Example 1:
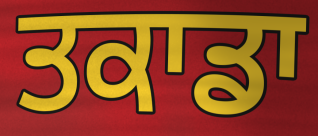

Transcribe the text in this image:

ਤਕਾਡਾ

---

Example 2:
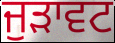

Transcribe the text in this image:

ਜੁੜਾਵਟ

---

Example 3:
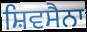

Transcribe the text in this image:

ਸ਼ਿਵਸੈਨਾ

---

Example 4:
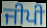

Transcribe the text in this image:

ਜੀਪੀ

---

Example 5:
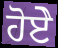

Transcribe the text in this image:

ਹੋਏੇ